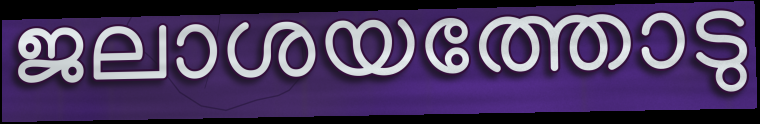
ജലാശയത്തോടു